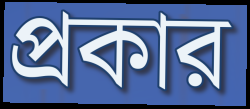
প্রকার